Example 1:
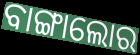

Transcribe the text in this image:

ବାଙ୍ଗାଲୋର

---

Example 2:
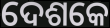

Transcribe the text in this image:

ଦେଶକେ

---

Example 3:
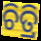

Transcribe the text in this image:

ଚିତ୍ରି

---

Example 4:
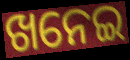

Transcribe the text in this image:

ଖନେଇ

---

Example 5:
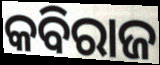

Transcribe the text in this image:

କବିରାଜ